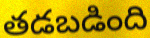
తడబడింది